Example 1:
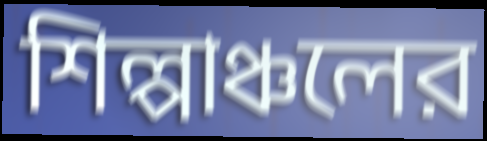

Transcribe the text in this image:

শিল্পাঞ্চলের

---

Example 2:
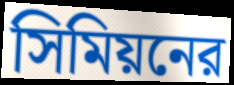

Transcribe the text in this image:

সিমিয়নের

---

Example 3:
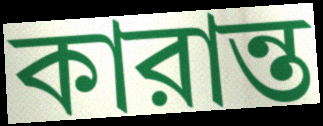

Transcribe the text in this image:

কারান্ত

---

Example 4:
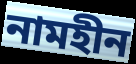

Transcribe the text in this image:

নামহীন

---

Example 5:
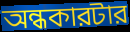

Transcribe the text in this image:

অন্ধকারটার